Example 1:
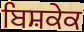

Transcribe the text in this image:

ਬਿਸ਼ਕੇਕ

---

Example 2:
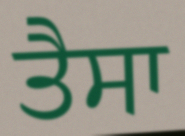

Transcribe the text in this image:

ਤੈਸਾ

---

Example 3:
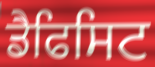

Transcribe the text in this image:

ਡੈਫਿਸਿਟ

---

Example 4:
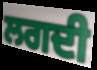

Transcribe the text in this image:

ਲਗਦੀ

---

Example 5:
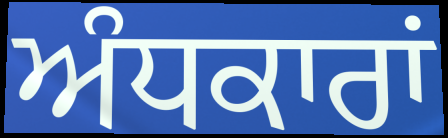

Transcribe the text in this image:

ਅੰਧਕਾਰਾਂ